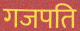
गजपति